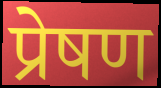
प्रेषण